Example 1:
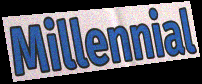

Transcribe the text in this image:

Millennial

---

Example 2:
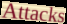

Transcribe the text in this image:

Attacks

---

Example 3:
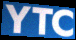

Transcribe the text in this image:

YTC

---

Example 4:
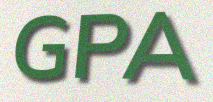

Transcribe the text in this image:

GPA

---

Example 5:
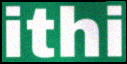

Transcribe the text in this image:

ithi